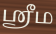
ஶ்ரீம